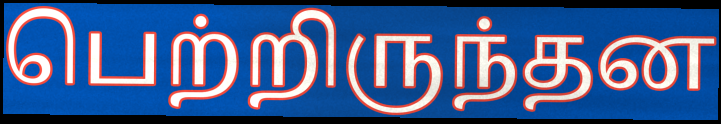
பெற்றிருந்தன